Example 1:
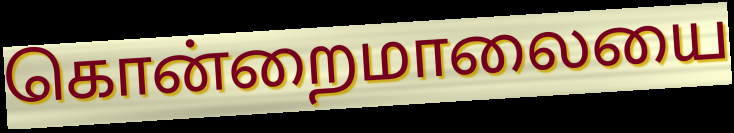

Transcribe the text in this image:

கொன்றைமாலையை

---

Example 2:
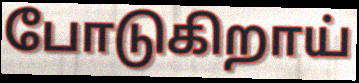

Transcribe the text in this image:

போடுகிறாய்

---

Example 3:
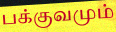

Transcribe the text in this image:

பக்குவமும்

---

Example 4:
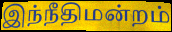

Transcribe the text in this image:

இந்நீதிமன்றம்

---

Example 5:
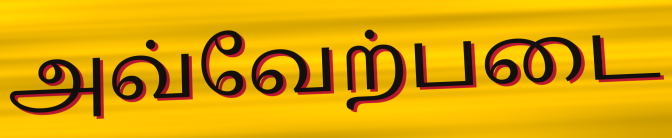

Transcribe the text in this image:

அவ்வேற்படை